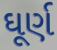
ઘૂર્ણ